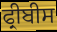
ਫ੍ਰੀਬੀਸ